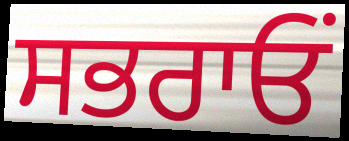
ਸਭਰਾਓਂ